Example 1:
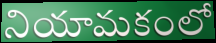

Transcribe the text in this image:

నియామకంలో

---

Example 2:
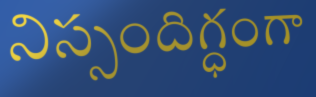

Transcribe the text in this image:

నిస్సందిగ్ధంగా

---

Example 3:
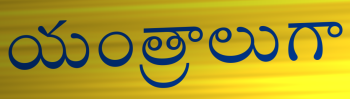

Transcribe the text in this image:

యంత్రాలుగా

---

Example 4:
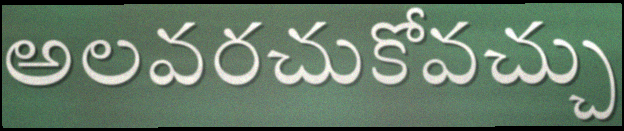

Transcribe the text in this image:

అలవరచుకోవచ్చు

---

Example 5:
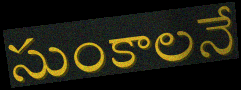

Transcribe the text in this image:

సుంకాలనే